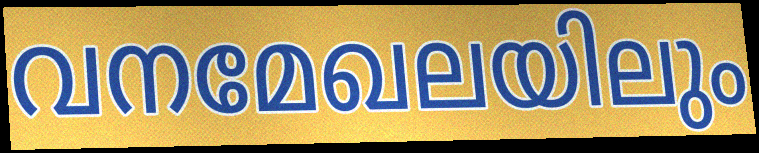
വനമേഖലയിലും